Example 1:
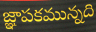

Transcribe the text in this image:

జ్ఞాపకమున్నది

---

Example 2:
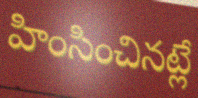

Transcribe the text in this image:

హింసించినట్లే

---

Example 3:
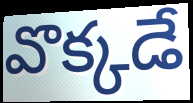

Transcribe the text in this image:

వొక్కడే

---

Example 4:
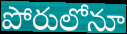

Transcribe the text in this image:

పోరులోనూ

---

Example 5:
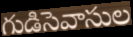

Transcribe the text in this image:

గుడిసెవాసుల